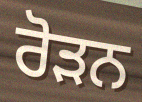
ਰੋੜਨ